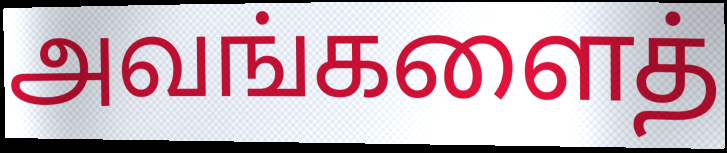
அவங்களைத்